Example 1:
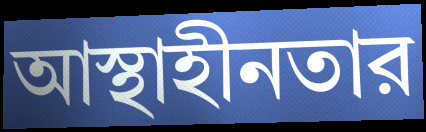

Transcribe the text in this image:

আস্থাহীনতার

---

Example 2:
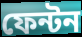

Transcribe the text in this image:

ফেন্টন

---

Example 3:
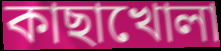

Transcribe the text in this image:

কাছাখোলা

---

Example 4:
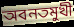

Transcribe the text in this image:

অবনতমুখী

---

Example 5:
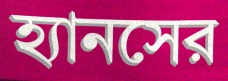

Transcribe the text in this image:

হ্যানসের